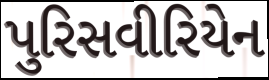
પુરિસવીરિયેન